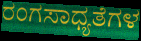
ರಂಗಸಾಧ್ಯತೆಗಳ